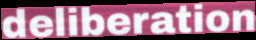
deliberation